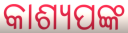
କାଶ୍ୟପଙ୍କ